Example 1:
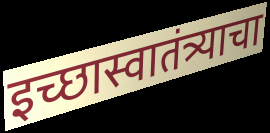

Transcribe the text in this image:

इच्छास्वातंत्र्याचा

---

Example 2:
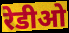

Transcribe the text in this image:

रेडीओ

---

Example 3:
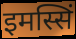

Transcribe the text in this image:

इमस्सिं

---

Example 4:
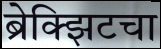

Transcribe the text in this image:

ब्रेक्झिटचा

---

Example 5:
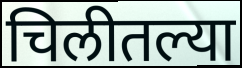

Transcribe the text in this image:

चिलीतल्या